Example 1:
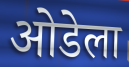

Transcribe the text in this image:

ओडेला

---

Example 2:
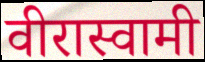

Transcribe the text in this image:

वीरास्वामी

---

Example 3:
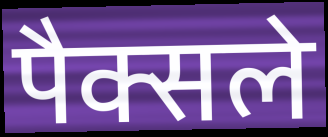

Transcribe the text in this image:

पैक्सले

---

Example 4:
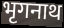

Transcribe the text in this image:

भृगनाथ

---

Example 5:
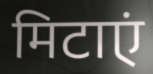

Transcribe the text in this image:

मिटाएं